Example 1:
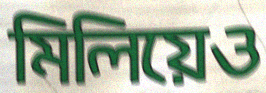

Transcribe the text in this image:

মিলিয়েও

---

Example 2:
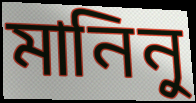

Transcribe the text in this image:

মানিনু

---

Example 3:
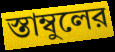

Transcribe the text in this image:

স্তাম্বুলের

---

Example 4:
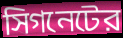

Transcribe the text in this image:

সিগনেটের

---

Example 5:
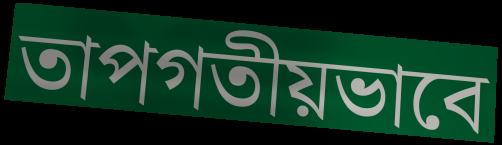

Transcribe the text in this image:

তাপগতীয়ভাবে